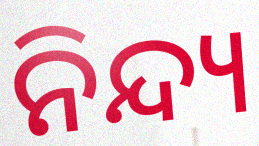
ନିନ୍ଦ୍ୟ